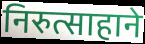
निरुत्साहाने